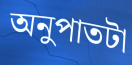
অনুপাতটা